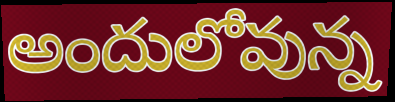
అందులోవున్న